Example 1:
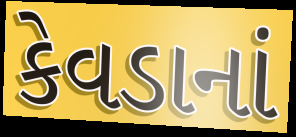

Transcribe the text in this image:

કેવડાનાં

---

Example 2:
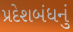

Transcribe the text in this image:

પ્રદેશબંધનું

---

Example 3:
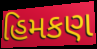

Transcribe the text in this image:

હિમકણ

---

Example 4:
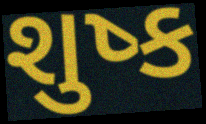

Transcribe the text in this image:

શુષ્ક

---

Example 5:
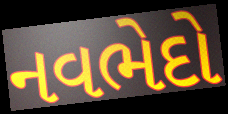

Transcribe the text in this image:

નવભેદો